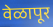
वेळापूर